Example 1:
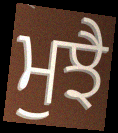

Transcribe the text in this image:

ਮੁਝੈ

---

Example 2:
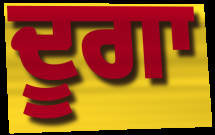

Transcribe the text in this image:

ਦੂਗਾ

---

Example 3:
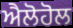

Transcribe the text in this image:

ਐਲੋਹੋਲ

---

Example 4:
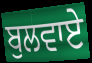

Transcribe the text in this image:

ਬੁਲਵਾਏ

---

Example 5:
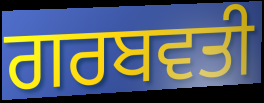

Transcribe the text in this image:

ਗਰਬਵਤੀ